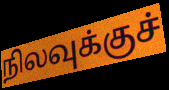
நிலவுக்குச்